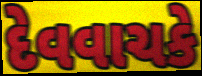
દેવવાચકે